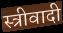
स्त्रीवादी